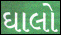
ઘાલો